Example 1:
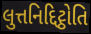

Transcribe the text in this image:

લુત્તનિદ્દિટ્ઠોતિ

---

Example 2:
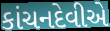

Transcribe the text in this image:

કાંચનદેવીએ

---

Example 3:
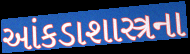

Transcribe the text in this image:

આંકડાશાસ્ત્રના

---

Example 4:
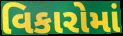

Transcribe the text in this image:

વિકારોમાં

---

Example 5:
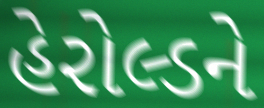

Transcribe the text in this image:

હેરોલ્ડને